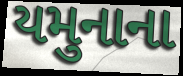
યમુનાના